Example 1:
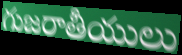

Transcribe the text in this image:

గుజరాతీయులు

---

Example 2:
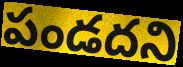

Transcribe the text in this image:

పండదని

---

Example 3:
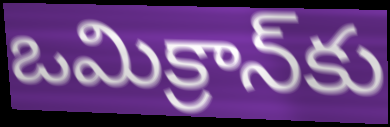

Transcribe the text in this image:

ఒమిక్రాన్‌కు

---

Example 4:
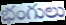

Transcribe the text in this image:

భంగులు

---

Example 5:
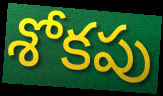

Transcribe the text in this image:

శోకపు